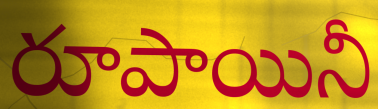
రూపాయినీ